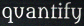
quantify